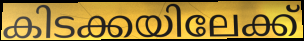
കിടക്കയിലേക്ക്